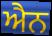
ਐਨ